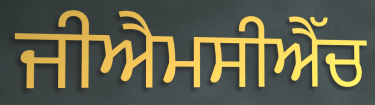
ਜੀਐਮਸੀਐੱਚ